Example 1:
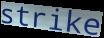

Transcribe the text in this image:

strike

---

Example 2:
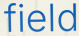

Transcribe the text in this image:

field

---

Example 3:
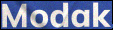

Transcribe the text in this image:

Modak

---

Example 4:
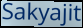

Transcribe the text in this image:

Sakyajit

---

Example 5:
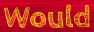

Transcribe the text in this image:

Would